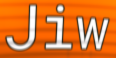
Jiw